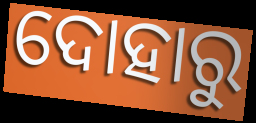
ଦୋହାରୁ